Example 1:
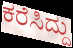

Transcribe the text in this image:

ಕರೆಸಿದ್ದು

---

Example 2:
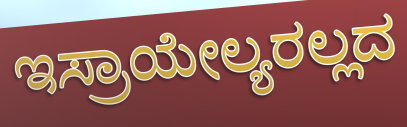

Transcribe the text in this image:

ಇಸ್ರಾಯೇಲ್ಯರಲ್ಲದ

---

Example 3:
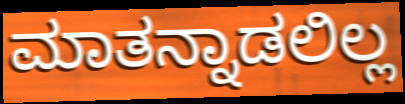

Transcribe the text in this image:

ಮಾತನ್ನಾಡಲಿಲ್ಲ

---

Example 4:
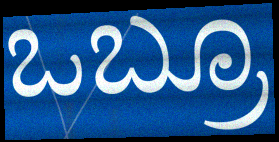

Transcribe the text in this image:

ಒಬ್ರೂ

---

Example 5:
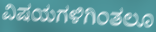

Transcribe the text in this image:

ವಿಷಯಗಳಿಗಿಂತಲೂ